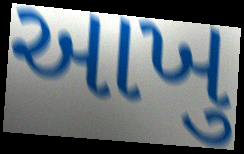
આખુ